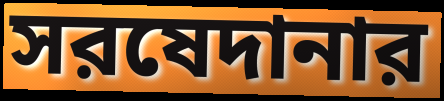
সরষেদানার